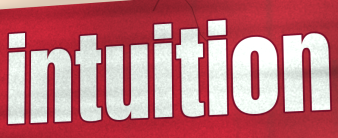
intuition